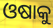
ଓଷାକୁ